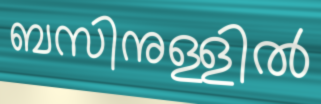
ബസിനുള്ളിൽ